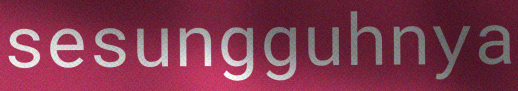
sesungguhnya